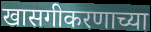
खासगीकरणाच्या